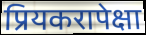
प्रियकरापेक्षा